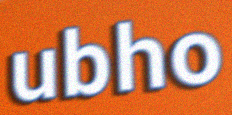
ubho